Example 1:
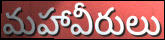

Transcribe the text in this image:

మహావీరులు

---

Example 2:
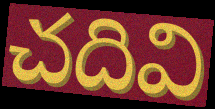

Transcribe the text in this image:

చదివి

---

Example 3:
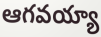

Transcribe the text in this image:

ఆగవయ్యా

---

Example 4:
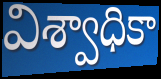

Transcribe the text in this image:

విశ్వాధికా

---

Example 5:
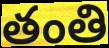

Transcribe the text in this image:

తంతి